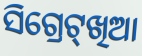
ସିଗ୍ରେଟ୍‌ଖିଆ